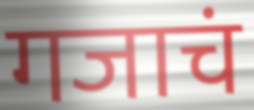
गजाचं